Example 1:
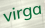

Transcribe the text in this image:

virga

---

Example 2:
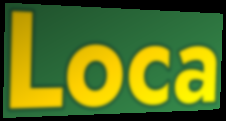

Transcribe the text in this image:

Loca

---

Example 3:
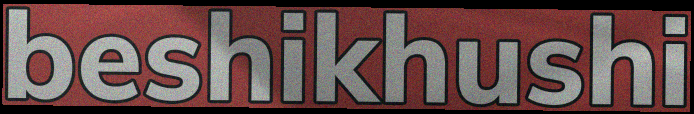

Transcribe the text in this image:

beshikhushi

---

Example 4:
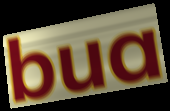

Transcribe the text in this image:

bua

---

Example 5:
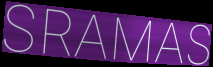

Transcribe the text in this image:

SRAMAS